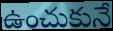
ఉంచుకునే